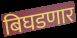
बिघडणार